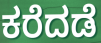
ಕರೆದಡೆ